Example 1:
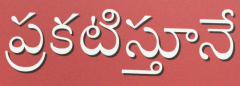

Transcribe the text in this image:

ప్రకటిస్తూనే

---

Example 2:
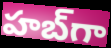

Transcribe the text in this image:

హబ్‌గా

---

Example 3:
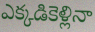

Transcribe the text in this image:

ఎక్కడికెళ్లినా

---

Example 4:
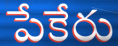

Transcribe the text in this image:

పేకేరు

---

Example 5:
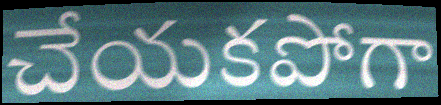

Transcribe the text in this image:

చేయకపోగా